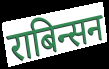
राबिन्सन